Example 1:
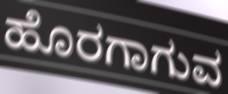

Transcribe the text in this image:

ಹೊರಗಾಗುವ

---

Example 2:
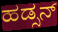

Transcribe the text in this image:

ಹಡ್ಸನ್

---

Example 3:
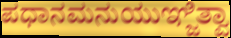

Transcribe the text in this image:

ಪಧಾನಮನುಯುಞ್ಜಿತ್ವಾ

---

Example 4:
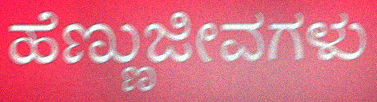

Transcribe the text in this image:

ಹೆಣ್ಣುಜೀವಗಳು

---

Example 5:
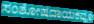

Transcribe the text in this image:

ಸಂತೋಷದಾಯಕವೂ